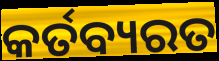
କର୍ତବ୍ୟରତ